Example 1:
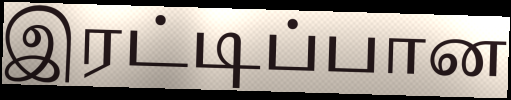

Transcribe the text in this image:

இரட்டிப்பான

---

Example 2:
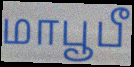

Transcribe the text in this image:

மாபூபீ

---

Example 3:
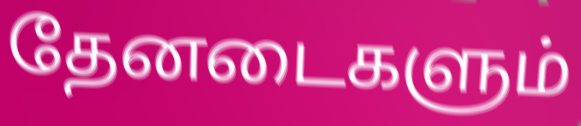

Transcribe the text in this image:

தேனடைகளும்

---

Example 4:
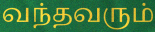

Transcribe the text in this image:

வந்தவரும்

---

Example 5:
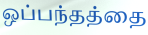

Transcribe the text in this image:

ஒப்பந்தத்தை